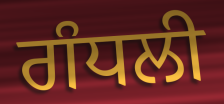
ਗੰਧਲੀ